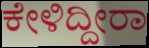
ಕೇಳಿದ್ದೀರಾ